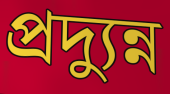
প্রদ্যুন্ন